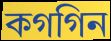
কগগিন